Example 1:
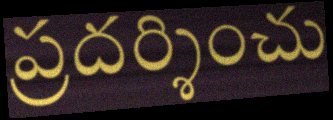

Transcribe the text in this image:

ప్రదర్శించు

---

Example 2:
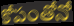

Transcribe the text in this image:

కోపంతోనో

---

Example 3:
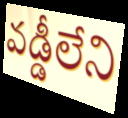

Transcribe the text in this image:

వడ్డీలేని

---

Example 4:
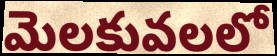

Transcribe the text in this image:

మెలకువలలో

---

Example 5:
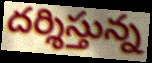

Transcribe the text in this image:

దర్శిస్తున్న